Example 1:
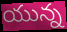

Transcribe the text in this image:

యున్న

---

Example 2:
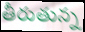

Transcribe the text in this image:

తీరుతున్న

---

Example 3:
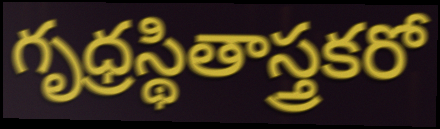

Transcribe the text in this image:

గృధ్రస్థితాస్త్రకరో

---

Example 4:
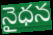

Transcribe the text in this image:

నైధన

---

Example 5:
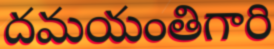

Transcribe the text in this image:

దమయంతిగారి